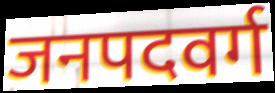
जनपदवर्ग